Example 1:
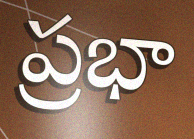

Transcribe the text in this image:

ప్రభా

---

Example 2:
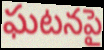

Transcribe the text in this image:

ఘటనపై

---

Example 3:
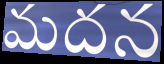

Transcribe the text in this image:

మదన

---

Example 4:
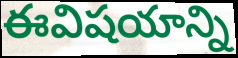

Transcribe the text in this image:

ఈవిషయాన్ని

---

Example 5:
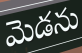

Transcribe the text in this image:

మెడను